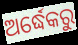
ଅର୍ଦ୍ଧେକରୁ